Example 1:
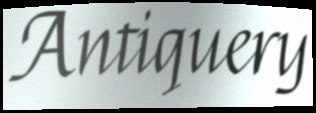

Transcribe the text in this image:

Antiquery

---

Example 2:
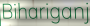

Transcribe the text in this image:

Bihariganj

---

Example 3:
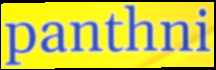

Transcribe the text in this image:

panthni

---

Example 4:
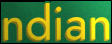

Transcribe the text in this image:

ndian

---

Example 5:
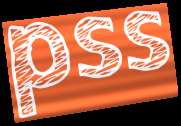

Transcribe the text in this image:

pss